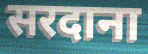
सरदाना